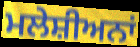
ਮਲੇਸ਼ੀਅਨਾਂ